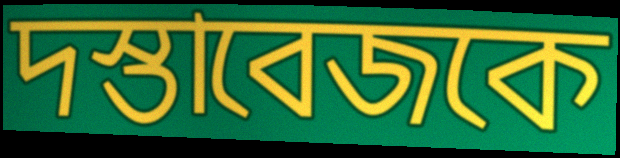
দস্তাবেজকে